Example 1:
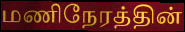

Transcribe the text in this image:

மணிநேரத்தின்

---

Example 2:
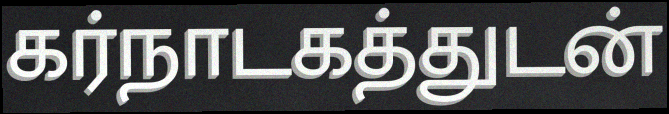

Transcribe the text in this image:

கர்நாடகத்துடன்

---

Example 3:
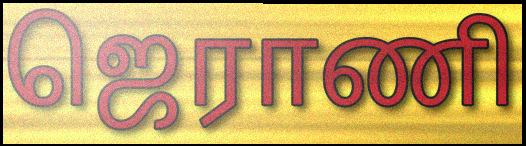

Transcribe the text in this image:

ஜெராணி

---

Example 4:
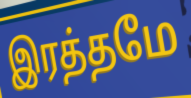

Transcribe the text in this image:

இரத்தமே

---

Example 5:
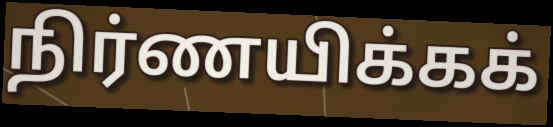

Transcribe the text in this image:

நிர்ணயிக்கக்